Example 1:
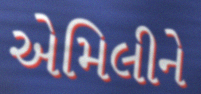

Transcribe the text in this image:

એમિલીને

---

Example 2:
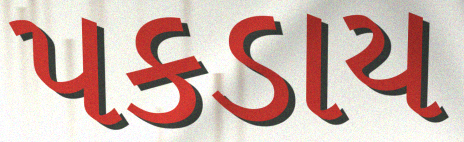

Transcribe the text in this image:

પકડાય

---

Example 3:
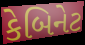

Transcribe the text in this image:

કેબિનેટ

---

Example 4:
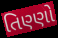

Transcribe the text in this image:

તિણ્ણો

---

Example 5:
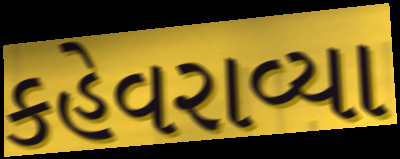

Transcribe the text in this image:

કહેવરાવ્યા